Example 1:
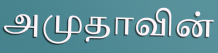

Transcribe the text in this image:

அமுதாவின்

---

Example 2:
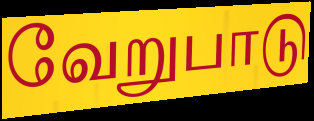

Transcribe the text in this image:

வேறுபாடு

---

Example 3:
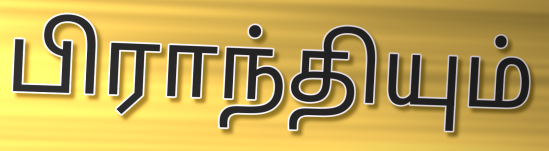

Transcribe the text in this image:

பிராந்தியும்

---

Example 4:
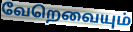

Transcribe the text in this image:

வேறெவையும்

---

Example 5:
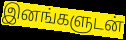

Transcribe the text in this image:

இனங்களுடன்